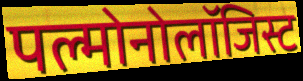
पल्मोनोलॉजिस्ट